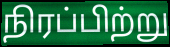
நிரப்பிற்று